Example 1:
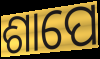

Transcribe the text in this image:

ଶାପେ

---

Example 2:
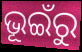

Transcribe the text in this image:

ଭୂଇଁରୁ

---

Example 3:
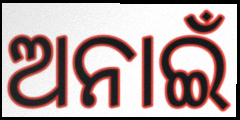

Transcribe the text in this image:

ଅନାଇଁ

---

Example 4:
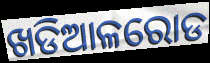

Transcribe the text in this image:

ଖଡିଆଳରୋଡ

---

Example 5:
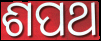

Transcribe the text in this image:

ଶପଥ